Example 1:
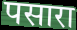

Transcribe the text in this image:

पसारा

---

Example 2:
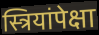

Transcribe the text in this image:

स्त्रियांपेक्षा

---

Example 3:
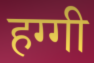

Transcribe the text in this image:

हग्गी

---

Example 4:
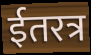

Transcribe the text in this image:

ईतरत्र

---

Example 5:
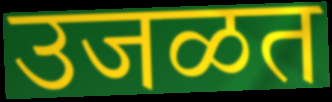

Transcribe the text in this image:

उजळत